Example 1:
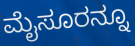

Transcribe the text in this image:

ಮೈಸೂರನ್ನೂ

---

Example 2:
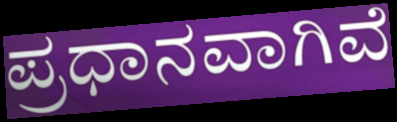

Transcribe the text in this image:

ಪ್ರಧಾನವಾಗಿವೆ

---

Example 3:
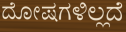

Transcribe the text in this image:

ದೋಷಗಳಿಲ್ಲದೆ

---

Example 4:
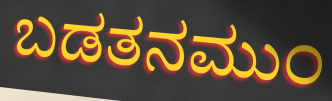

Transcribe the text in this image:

ಬಡತನಮುಂ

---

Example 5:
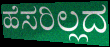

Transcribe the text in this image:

ಹೆಸರಿಲ್ಲದ